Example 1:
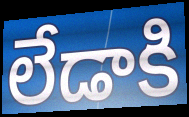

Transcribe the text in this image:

లేడాకి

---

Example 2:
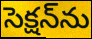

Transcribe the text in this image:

సెక్షన్‌ను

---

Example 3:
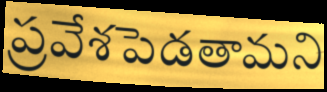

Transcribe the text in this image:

ప్రవేశపెడతామని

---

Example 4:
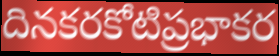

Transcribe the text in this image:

దినకరకోటిప్రభాకర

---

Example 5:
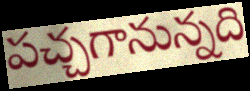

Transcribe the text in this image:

పచ్చగానున్నది